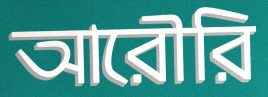
আরৌরি